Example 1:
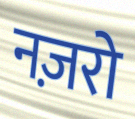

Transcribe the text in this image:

नज़रो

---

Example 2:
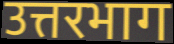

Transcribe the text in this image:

उत्तरभाग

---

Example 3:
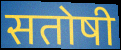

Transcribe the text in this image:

सतोषी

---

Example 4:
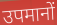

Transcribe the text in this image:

उपमानों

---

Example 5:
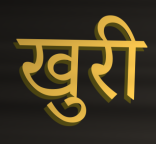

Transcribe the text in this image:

खुरी